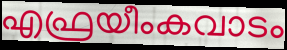
എഫ്രയീംകവാടം